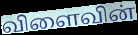
விளைவின்